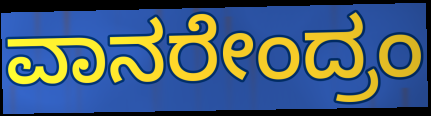
ವಾನರೇಂದ್ರಂ